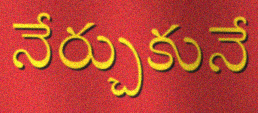
నేర్చుకునే